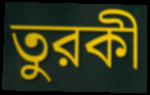
তুরকী